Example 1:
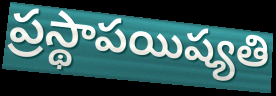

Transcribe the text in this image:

ప్రస్థాపయిష్యతి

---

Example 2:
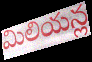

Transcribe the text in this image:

మిలియన్ల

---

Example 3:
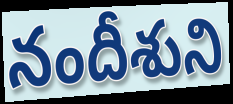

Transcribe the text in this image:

నందీశుని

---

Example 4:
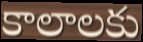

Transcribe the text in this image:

కాలాలకు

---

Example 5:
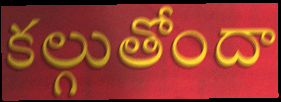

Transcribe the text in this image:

కల్గుతోందా